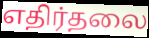
எதிர்தலை